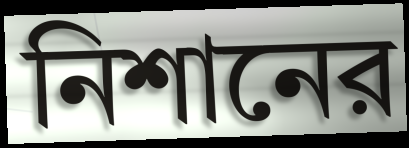
নিশানের